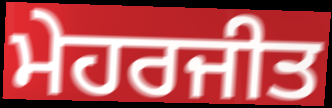
ਮੇਹਰਜੀਤ